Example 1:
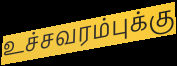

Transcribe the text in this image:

உச்சவரம்புக்கு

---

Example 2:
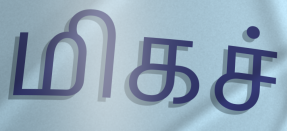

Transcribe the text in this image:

மிகச்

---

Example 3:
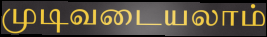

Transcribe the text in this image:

முடிவடையலாம்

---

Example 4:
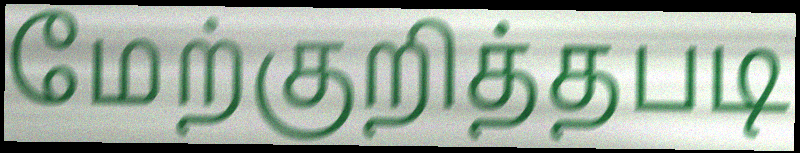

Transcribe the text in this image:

மேற்குறித்தபடி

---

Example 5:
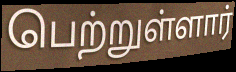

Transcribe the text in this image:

பெற்றுள்ளார்